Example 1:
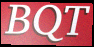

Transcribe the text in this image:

BQT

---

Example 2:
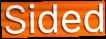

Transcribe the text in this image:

Sided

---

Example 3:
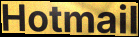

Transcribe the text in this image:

Hotmail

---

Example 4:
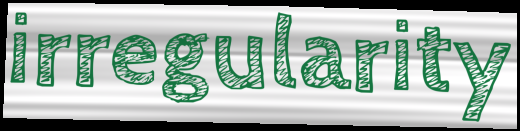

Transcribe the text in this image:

irregularity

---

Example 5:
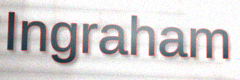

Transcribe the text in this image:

Ingraham